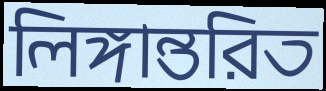
লিঙ্গান্তরিত